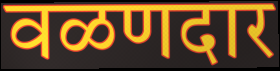
वळणदार